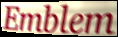
Emblem